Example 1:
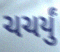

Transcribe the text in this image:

ચચર્યું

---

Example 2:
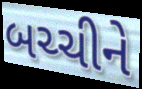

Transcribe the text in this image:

બચ્ચીને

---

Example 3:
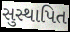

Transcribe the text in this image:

સુસ્થાપિત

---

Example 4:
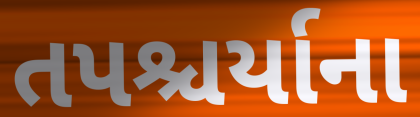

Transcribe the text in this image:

તપશ્ચર્યાના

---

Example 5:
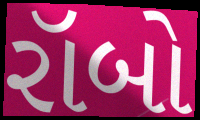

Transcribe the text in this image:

રૉબો